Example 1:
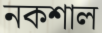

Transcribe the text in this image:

নকশাল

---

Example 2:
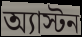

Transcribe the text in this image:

অ্যাস্টন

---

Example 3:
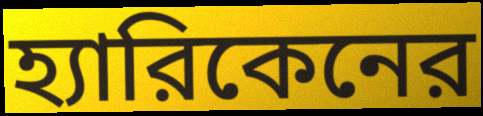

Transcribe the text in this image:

হ্যারিকেনের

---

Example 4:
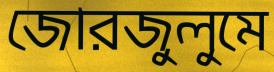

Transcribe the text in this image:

জোরজুলুমে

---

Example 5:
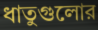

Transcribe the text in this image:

ধাতুগুলোর